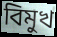
বিমুখ